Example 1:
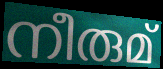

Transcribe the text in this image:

നീരുമ്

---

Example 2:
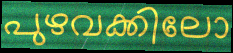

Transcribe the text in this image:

പുഴവക്കിലോ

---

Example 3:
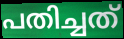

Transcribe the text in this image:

പതിച്ചത്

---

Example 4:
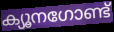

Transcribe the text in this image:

ക്യൂനഗോണ്ട്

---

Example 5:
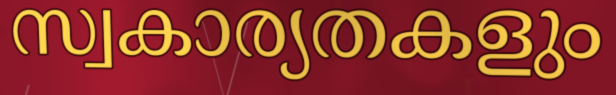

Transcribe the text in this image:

സ്വകാര്യതകളും